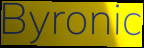
Byronic